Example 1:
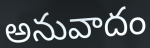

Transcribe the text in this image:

అనువాదం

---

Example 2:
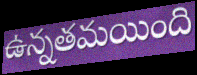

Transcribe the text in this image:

ఉన్నతమయింది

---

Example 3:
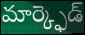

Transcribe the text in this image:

మార్క్ఫెడ్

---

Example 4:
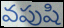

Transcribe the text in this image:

వపుషి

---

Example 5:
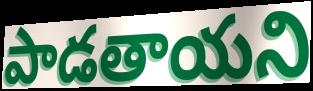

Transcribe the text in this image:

పాడతాయని